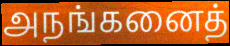
அநங்கனைத்